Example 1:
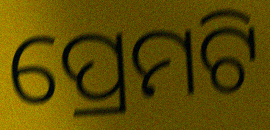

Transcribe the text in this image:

ପ୍ରେମଟି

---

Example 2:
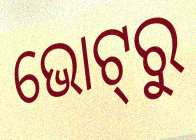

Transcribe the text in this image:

ଭୋଟ୍‌ରୁ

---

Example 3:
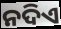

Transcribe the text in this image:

ନଦିଏ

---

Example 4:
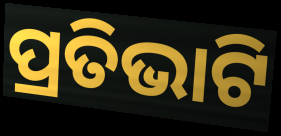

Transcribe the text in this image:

ପ୍ରତିଭାଟି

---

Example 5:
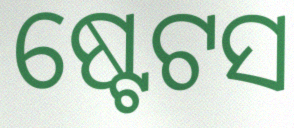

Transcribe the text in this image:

ଷ୍ଟେଟସ